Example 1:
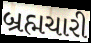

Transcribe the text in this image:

બ્રહ્મચારી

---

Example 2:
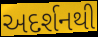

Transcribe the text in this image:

અદર્શનથી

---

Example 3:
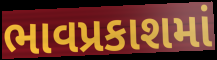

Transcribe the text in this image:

ભાવપ્રકાશમાં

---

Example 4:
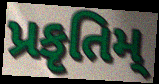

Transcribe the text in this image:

પ્રકૃતિમ્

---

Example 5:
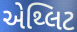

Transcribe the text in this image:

એથ્લિટ